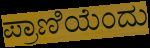
ಪ್ರಾಣಿಯೆಂದು